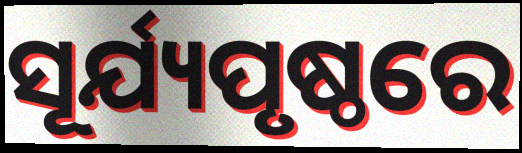
ସୂର୍ଯ୍ୟପୃଷ୍ଠରେ